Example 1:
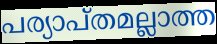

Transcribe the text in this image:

പര്യാപ്തമല്ലാത്ത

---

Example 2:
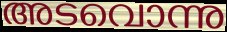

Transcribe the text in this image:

അടവൊന്നു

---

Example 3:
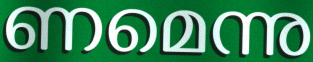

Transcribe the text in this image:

ണമെന്നു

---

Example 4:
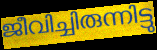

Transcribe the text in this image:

ജീവിച്ചിരുന്നിട്ടു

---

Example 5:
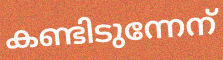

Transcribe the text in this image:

കണ്ടിടുന്നേന്